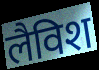
लैविश